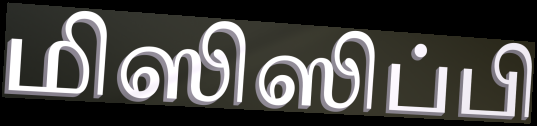
மிஸிஸிப்பி